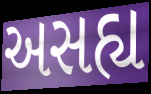
અસહ્ય